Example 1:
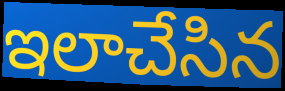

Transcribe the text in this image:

ఇలాచేసిన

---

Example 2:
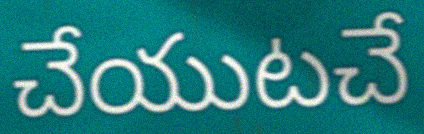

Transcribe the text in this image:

చేయుటచే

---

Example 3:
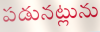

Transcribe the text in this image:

పడునట్లును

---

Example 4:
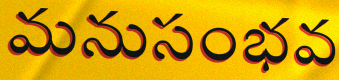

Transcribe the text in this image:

మనుసంభవ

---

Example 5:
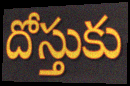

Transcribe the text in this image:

దోస్తుకు